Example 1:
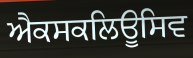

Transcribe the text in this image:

ਐਕਸਕਲਿਊਸਿਵ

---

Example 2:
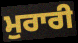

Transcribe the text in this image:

ਮੁਰਾਰੀ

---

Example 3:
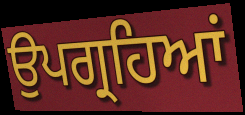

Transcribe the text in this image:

ਉਪਗ੍ਰਹਿਆਂ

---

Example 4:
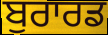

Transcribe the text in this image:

ਬੁਰਾਰਡ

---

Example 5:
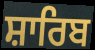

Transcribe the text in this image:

ਸ਼ਾਰਿਬ